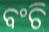
ବଂଚି